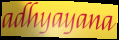
adhyayana